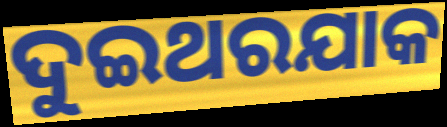
ଦୁଇଥରଯାକ